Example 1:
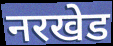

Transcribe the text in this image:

नरखेड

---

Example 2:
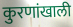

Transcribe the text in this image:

कुरणांखाली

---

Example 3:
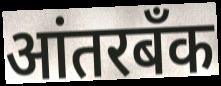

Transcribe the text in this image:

आंतरबँक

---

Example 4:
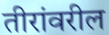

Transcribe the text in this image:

तीरांवरील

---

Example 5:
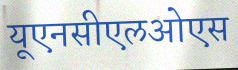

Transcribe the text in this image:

यूएनसीएलओएस